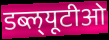
डब्ल्यूटीओ